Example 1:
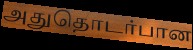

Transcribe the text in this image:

அதுதொடர்பான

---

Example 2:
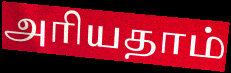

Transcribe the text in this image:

அரியதாம்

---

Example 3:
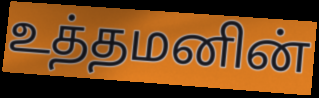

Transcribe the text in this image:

உத்தமனின்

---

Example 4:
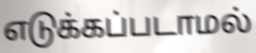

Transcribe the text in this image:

எடுக்கப்படாமல்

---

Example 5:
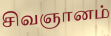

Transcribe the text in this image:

சிவஞானம்